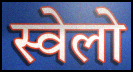
स्वेलो